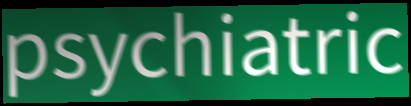
psychiatric